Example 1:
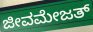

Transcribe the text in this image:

ಜೀವಮೇಜತ್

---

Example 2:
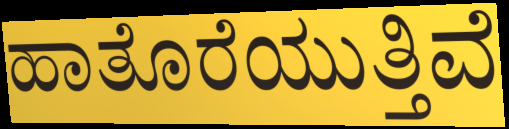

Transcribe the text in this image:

ಹಾತೊರೆಯುತ್ತಿವೆ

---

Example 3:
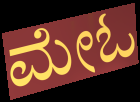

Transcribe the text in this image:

ಮೇಓ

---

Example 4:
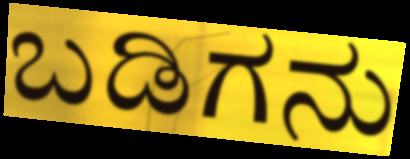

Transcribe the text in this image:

ಬಡಿಗನು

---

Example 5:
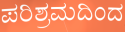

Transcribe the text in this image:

ಪರಿಶ್ರಮದಿಂದ